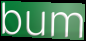
bum